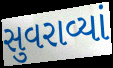
સુવરાવ્યાં